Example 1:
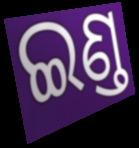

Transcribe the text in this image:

ଇଣ୍ଡ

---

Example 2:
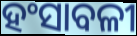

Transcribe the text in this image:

ହଂସାବଳୀ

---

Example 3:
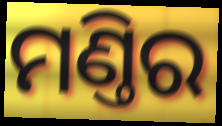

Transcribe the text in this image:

ମଣ୍ତିର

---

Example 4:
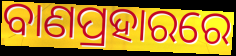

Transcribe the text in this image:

ବାଣପ୍ରହାରରେ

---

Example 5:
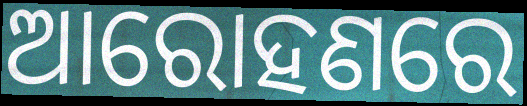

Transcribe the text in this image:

ଆରୋହଣରେ